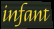
infant